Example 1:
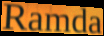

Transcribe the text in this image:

Ramda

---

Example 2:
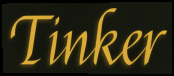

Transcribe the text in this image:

Tinker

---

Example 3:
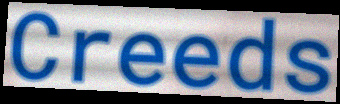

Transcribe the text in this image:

Creeds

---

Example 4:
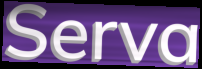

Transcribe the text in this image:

Serva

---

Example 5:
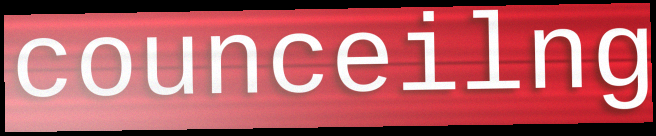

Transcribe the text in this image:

counceilng